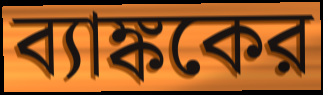
ব্যাঙ্ককের